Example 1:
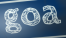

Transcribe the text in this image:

goa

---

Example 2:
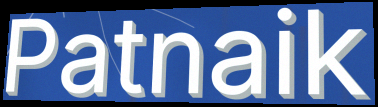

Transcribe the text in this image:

Patnaik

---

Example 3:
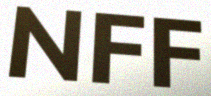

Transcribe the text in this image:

NFF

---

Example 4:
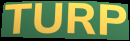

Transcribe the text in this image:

TURP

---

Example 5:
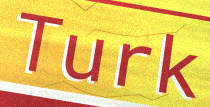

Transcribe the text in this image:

Turk